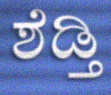
ಶೆಡ್ತಿ